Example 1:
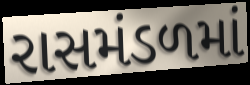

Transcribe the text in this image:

રાસમંડળમાં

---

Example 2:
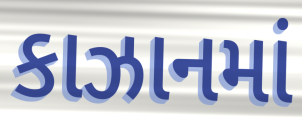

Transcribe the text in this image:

કાઝાનમાં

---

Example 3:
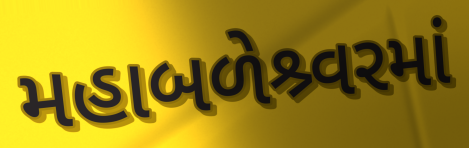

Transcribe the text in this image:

મહાબળેશ્ર્વરમાં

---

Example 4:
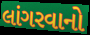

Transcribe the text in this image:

લાંગરવાનો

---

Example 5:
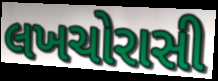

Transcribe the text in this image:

લખચોરાસી